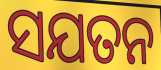
ସଯତନ